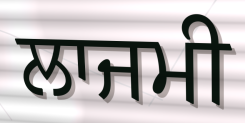
ਲਾਜਮੀ